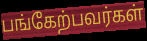
பங்கேற்பவர்கள்